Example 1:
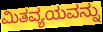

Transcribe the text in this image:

ಮಿತವ್ಯಯವನ್ನು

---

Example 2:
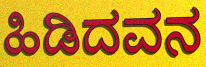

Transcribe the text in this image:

ಹಿಡಿದವನ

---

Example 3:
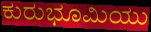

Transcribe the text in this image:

ಕುರುಭೂಮಿಯು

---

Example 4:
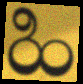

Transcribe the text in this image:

ಹಿ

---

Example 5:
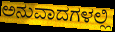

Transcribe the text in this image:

ಅನುವಾದಗಳಲ್ಲಿ